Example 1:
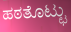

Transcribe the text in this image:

ಹಠತೊಟ್ಟು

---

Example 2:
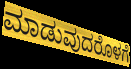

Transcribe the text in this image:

ಮಾಡುವುದರೊಳಗೆ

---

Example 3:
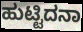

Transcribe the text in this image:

ಹುಟ್ಟಿದನಾ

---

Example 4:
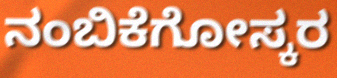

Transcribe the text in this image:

ನಂಬಿಕೆಗೋಸ್ಕರ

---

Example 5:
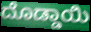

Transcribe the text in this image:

ದೊಡ್ಡಾಯಿ